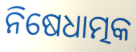
ନିଷେଧାତ୍ମକ